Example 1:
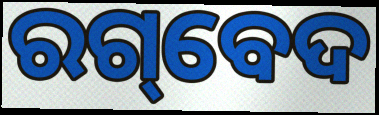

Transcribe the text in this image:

ରଗ୍‌ବେଦ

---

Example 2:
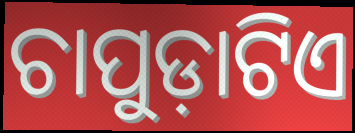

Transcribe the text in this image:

ଚାପୁଡ଼ାଟିଏ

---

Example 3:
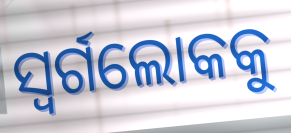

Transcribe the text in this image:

ସ୍ବର୍ଗଲୋକକୁ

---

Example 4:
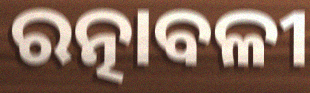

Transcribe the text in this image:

ରତ୍ନାବଳୀ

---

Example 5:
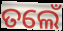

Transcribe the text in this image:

ତଲେଁ